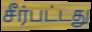
சீர்பட்டது